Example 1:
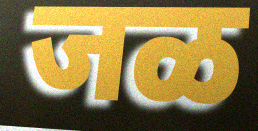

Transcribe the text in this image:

जळ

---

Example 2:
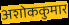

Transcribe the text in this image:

अशोककुमार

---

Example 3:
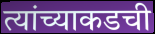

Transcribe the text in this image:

त्यांच्याकडची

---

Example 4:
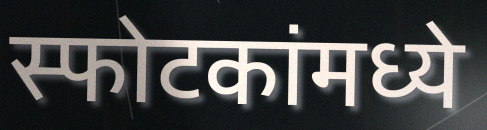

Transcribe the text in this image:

स्फोटकांमध्ये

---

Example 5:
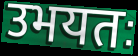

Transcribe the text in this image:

उभयतः